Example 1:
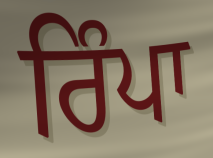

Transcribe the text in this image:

ਰਿੰਪਾ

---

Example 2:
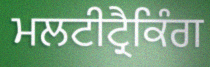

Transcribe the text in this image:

ਮਲਟੀਟ੍ਰੈਕਿੰਗ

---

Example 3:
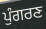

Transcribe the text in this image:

ਪੁੰਗਰਣ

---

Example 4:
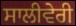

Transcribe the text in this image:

ਸਾਲੀਵੇਰੀ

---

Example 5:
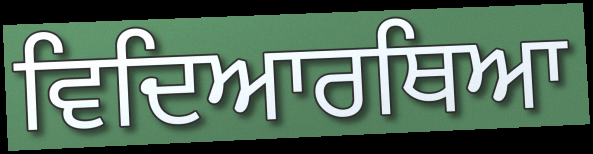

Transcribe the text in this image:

ਵਿਦਿਆਰਥਿਆ